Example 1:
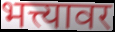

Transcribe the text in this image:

भत्त्यावर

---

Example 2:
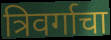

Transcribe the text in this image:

त्रिवर्गाचा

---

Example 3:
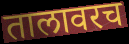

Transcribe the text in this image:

तालावरच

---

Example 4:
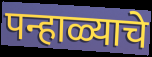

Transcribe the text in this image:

पन्हाळ्याचे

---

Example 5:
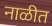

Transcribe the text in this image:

नाळीत